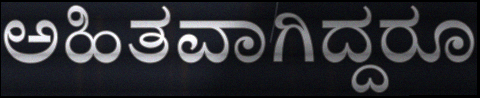
ಅಹಿತವಾಗಿದ್ದರೂ